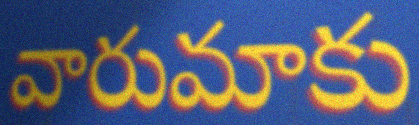
వారుమాకు